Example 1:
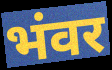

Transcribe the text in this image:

भंवर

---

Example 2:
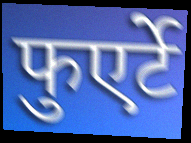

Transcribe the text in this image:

फुएर्टे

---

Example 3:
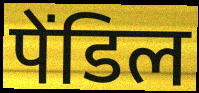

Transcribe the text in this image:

पेंडिल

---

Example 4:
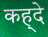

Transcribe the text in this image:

कह्दे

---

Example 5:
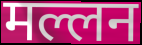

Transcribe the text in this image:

मल्लन